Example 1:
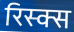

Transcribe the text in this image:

रिस्क्स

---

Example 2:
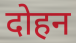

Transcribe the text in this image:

दोहन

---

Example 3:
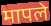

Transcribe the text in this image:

मापले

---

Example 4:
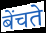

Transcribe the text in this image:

बेंचते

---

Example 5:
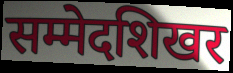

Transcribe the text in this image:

सम्मेदशिखर